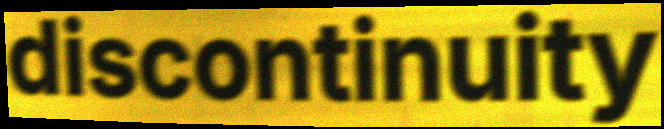
discontinuity